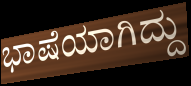
ಭಾಷೆಯಾಗಿದ್ದು